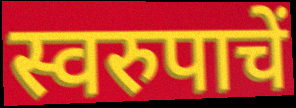
स्वरुपाचें